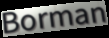
Borman